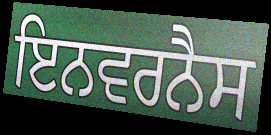
ਇਨਵਰਨੈਸ